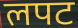
लपट